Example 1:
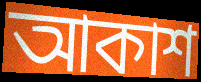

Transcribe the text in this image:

আকাশ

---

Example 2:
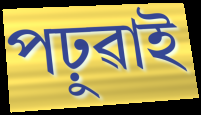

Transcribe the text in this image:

পঢ়ুৱাই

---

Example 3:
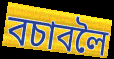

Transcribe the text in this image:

বচাবলৈ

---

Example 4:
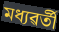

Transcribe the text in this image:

মধ্যৱৰ্তী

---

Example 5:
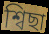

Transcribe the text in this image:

শ্বিছা